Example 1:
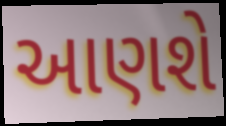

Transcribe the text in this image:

આણશે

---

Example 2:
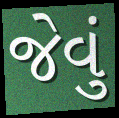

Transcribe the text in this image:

જેવું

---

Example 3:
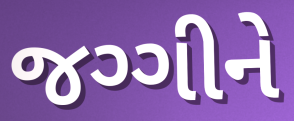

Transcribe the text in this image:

જગ્ગીને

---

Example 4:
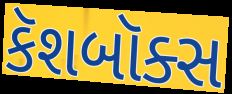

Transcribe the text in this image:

કૅશબૉક્સ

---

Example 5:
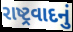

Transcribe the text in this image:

રાષ્ટ્રવાદનું